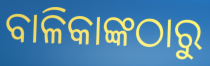
ବାଳିକାଙ୍କଠାରୁ